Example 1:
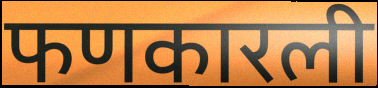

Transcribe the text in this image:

फणकारली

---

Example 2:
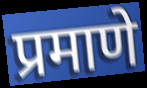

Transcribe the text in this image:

प्रमाणे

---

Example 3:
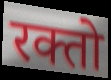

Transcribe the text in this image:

रक्तो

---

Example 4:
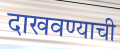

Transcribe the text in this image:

दाखवण्याची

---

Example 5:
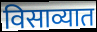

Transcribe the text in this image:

विसाव्यात